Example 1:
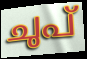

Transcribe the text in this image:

ചുപ്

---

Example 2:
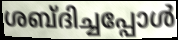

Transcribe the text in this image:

ശബ്ദിച്ചപ്പോൾ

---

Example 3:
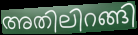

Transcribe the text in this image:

അതിലിറങ്ങി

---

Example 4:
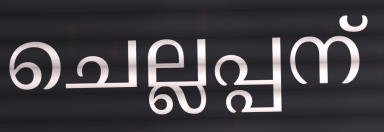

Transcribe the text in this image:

ചെല്ലപ്പന്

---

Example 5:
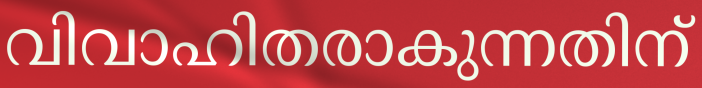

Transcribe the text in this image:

വിവാഹിതരാകുന്നതിന്